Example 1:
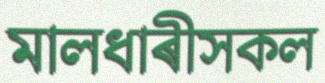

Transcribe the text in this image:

মালধাৰীসকল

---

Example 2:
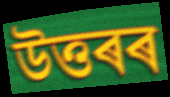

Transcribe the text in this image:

উত্তৰৰ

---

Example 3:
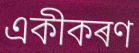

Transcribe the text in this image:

একীকৰণ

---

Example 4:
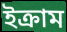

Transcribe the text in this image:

ইক্ৰাম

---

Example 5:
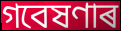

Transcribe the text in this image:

গবেষণাৰ